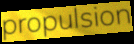
propulsion